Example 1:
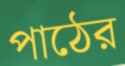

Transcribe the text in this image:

পাঠের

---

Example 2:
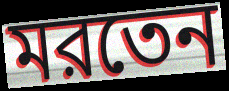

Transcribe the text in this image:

মরতেন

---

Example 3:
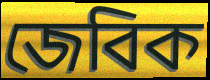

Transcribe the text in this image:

জেবিক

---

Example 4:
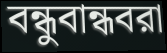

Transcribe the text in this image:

বন্ধুবান্ধবরা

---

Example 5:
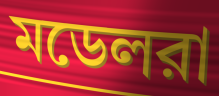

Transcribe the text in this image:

মডেলরা